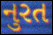
નુરત